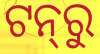
ଟନ୍‍ରୁ